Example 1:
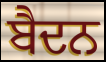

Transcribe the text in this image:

ਬੈਦਨ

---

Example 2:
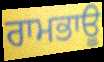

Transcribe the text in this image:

ਰਾਮਭਾਊ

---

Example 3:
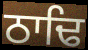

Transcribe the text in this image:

ਠਾਢਿ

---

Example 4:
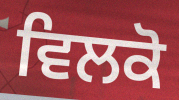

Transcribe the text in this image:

ਵਿਲਕੋ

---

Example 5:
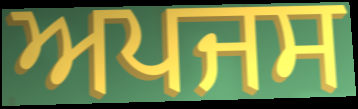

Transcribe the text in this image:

ਅਪਜਸ